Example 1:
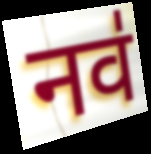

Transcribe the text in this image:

नव॑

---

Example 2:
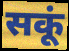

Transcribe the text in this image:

सकूं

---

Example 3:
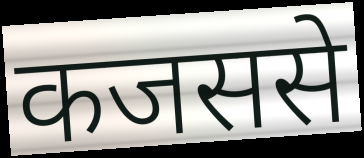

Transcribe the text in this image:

कजससे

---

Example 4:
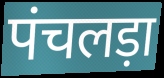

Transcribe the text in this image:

पंचलड़ा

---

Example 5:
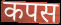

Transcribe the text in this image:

कपस